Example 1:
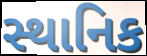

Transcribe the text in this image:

સ્થાનિક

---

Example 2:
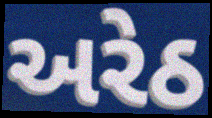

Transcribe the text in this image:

અરેઠ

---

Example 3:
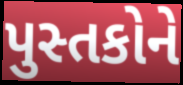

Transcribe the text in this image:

પુસ્તકોને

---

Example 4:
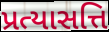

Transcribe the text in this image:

પ્રત્યાસત્તિ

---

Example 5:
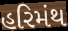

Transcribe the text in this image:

હરિમંથ